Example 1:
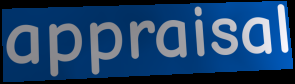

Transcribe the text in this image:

appraisal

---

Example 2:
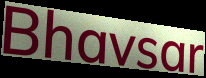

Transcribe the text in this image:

Bhavsar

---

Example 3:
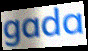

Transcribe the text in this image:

gada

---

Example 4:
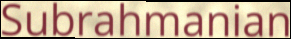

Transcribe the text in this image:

Subrahmanian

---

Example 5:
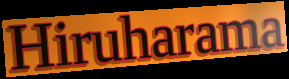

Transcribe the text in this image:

Hiruharama